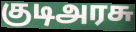
குடிஅரசு